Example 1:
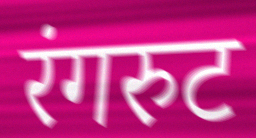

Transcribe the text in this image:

रंगरुट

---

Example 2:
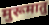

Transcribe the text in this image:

मुरूमातु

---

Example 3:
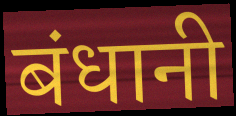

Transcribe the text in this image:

बंधानी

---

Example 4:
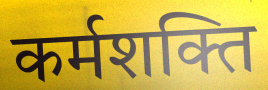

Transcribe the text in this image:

कर्मशक्ति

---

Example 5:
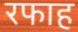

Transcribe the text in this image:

रफाह